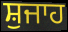
ਸ਼ੁਜਾਹ